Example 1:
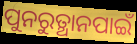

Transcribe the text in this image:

ପୁନରୁତ୍ଥାନପାଇଁ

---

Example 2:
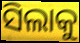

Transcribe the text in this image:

ସିଲାକୁ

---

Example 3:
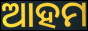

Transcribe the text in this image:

ଆହମ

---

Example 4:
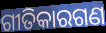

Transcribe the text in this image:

ଗୀତିକାରଗଣ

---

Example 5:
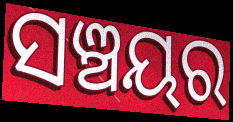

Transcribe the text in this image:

ସଞ୍ଚୟର